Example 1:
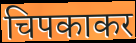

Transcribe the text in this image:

चिपकाकर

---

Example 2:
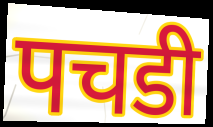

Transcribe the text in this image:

पचडी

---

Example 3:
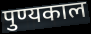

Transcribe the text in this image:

पुण्यकाल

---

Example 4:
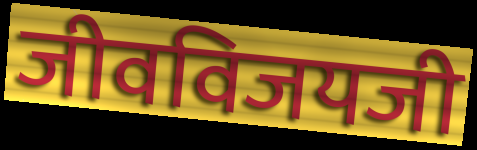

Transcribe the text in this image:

जीवविजयजी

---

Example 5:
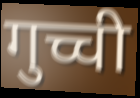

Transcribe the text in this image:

गुच्ची